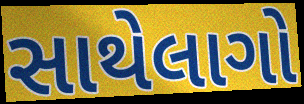
સાથેલાગો